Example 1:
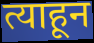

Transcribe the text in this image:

त्याहून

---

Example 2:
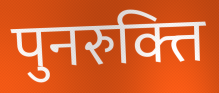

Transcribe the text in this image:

पुनरुक्ति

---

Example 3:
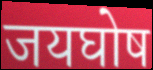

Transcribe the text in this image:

जयघोष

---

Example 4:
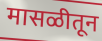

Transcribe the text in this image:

मासळीतून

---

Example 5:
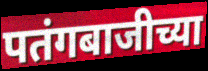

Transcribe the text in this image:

पतंगबाजीच्या